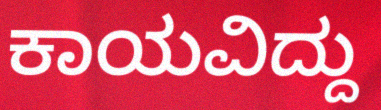
ಕಾಯವಿದ್ದು